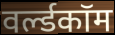
वर्ल्डकॉम